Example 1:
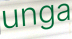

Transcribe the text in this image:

unga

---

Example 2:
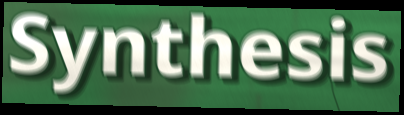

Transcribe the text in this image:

Synthesis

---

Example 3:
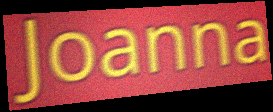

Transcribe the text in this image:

Joanna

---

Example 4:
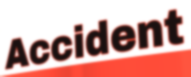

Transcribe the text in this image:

Accident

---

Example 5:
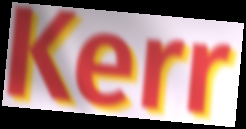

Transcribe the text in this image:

Kerr